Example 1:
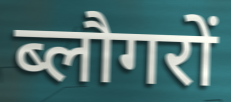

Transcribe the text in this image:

ब्लौगरों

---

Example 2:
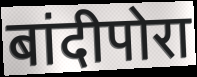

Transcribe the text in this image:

बांदीपोरा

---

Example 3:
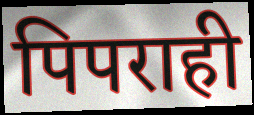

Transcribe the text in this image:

पिपराही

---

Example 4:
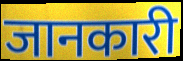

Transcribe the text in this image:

जानकारी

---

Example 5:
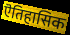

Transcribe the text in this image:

ऎतिहासिक